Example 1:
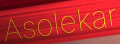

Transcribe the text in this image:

Asolekar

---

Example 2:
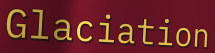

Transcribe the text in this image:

Glaciation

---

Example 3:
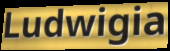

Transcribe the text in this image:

Ludwigia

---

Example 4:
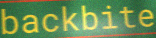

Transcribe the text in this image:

backbite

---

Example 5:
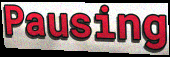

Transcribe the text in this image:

Pausing